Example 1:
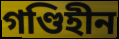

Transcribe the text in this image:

গণ্ডিহীন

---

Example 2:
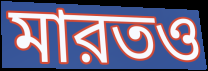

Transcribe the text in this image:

মারতও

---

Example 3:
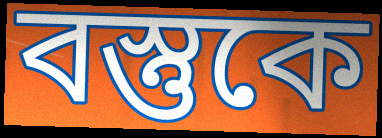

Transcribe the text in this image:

বস্তুকে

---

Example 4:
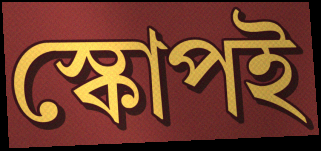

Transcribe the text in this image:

স্কোপই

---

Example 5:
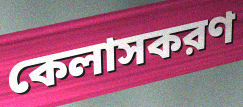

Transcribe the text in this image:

কেলাসকরণ